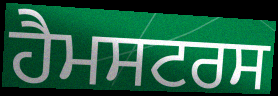
ਹੈਮਸਟਰਸ